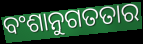
ବଂଶାନୁଗତତାର